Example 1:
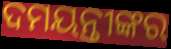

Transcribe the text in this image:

ଦମୟନ୍ତୀଙ୍କର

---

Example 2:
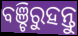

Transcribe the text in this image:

ବଞ୍ଚିରୁହନ୍ତୁ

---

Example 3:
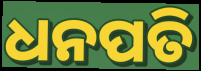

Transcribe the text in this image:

ଧନପତି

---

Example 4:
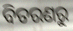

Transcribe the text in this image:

ବିତରଣରୁ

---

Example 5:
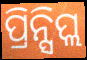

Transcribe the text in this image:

ପ୍ରିନ୍ସିପ୍ଲ